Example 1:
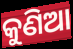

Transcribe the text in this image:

କୁଣିଆ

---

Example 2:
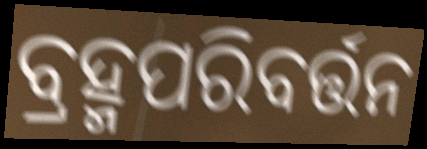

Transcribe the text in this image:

ବ୍ରହ୍ମପରିବର୍ତ୍ତନ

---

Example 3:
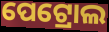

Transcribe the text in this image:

ପେଟ୍ରୋଲ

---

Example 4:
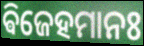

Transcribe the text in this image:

ଵିଜେହମାନଃ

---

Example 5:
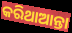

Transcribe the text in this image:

କରିଥାଆନ୍ତା